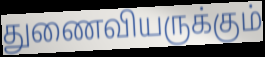
துணைவியருக்கும்